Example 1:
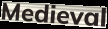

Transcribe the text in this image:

Medieval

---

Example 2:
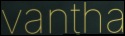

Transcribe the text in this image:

vantha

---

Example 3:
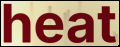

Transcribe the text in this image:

heat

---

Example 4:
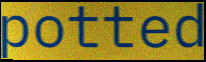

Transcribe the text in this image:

potted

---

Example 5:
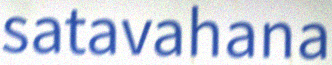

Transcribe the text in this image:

satavahana